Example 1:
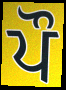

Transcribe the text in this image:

ਪੌ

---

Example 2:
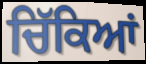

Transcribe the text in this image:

ਚਿੱਕਿਆਂ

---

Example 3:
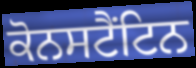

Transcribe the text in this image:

ਕੋਨਸਟੈਂਟਿਨ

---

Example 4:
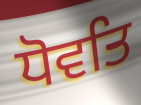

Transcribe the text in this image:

ਧੋਵਤਿ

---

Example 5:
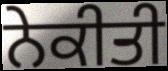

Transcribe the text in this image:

ਨੇਕੀਤੀ